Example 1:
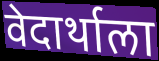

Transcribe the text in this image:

वेदार्थाला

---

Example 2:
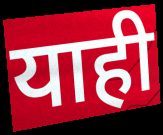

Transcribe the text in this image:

याही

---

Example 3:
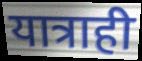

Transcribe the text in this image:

यात्राही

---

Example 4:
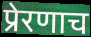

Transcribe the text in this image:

प्रेरणाच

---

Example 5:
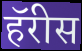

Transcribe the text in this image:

हॅरीस